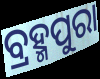
ବ୍ରହ୍ମପୁରା